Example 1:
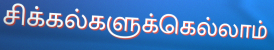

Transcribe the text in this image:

சிக்கல்களுக்கெல்லாம்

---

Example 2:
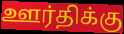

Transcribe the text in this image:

ஊர்திக்கு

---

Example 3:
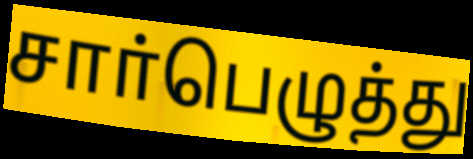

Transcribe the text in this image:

சார்பெழுத்து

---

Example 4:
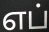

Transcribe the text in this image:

எப்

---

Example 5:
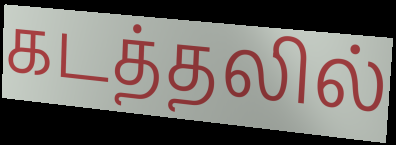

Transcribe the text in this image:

கடத்தலில்